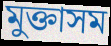
মুক্তাসম